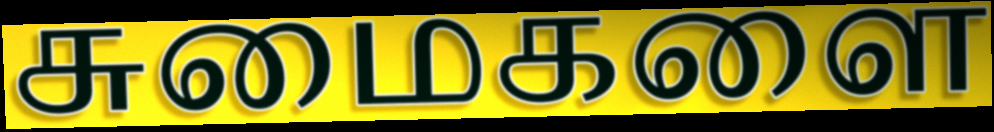
சுமைகளை